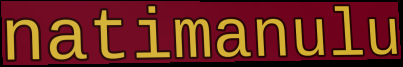
natimanulu